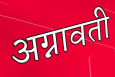
अग्नावती